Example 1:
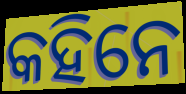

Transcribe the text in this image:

କହିନେ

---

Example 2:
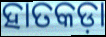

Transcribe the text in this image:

ହାତକଡ଼ା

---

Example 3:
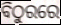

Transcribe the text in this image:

ବିଠୁରରେ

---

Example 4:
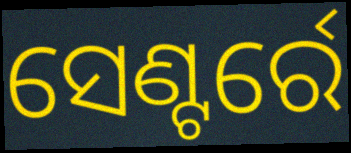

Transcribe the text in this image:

ସେଣ୍ଟର୍ରେ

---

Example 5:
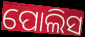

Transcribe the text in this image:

ପୋଲିସ